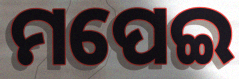
ମପେଇ